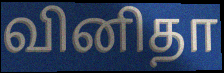
வினிதா